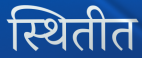
स्थितीत